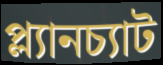
প্ল্যানচ্যাট